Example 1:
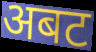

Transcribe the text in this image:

अबट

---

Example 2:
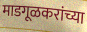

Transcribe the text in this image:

माडगूळकरांच्या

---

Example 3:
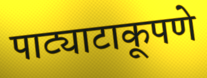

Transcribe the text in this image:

पाट्याटाकूपणे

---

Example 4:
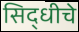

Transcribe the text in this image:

सिद्धीचे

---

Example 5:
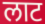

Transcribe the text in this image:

लाट